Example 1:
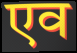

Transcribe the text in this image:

एव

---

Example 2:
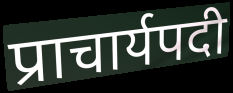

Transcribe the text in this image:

प्राचार्यपदी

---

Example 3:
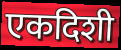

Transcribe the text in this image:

एकदिशी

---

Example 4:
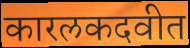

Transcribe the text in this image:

कारलकदवीत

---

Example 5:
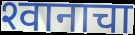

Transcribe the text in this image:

श्वानाचा